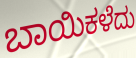
ಬಾಯಿಕಳೆದು